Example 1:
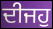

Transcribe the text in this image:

ਦੀਜਹੁ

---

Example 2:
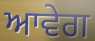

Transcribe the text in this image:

ਆਵੇਗ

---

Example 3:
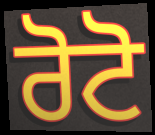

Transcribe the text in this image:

ਰੋਟੋ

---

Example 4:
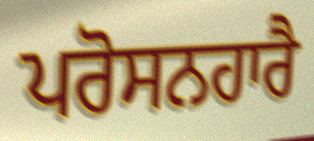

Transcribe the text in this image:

ਪਰੋਸਨਹਾਰੈ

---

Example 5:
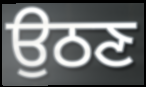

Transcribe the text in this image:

ਉਠਣ